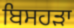
ਬਿਸਹੜਾ